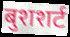
बुशशर्ट